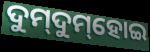
ଦୁମ୍‌ଦୁମ୍‌ହୋଇ